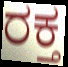
ರಕ್ತ